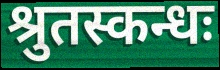
श्रुतस्कन्धः